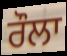
ਰੌਲਾ